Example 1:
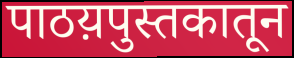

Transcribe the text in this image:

पाठय़पुस्तकातून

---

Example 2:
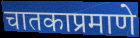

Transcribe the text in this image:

चातकाप्रमाणे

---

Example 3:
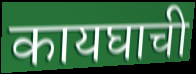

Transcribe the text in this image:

कायघाची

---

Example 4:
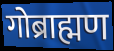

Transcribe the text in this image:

गोब्राह्मण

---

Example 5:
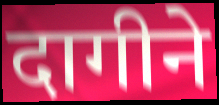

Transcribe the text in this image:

दागीने